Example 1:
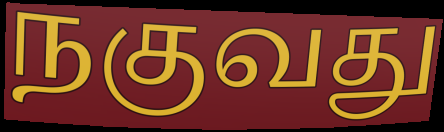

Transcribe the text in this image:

நகுவது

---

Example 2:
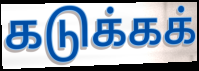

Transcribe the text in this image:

கடுக்கக்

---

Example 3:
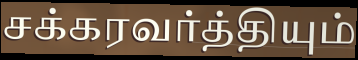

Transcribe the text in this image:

சக்கரவர்த்தியும்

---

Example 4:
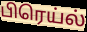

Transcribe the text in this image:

பிரெய்ல்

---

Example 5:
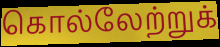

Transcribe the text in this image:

கொல்லேற்றுக்